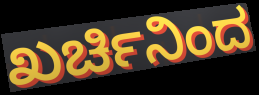
ಖರ್ಚಿನಿಂದ